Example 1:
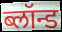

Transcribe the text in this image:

ब्लॉन्ड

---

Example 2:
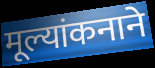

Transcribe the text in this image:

मूल्यांकनाने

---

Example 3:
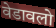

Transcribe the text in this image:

वेडावलो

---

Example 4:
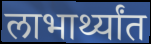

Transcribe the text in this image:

लाभार्थ्यांत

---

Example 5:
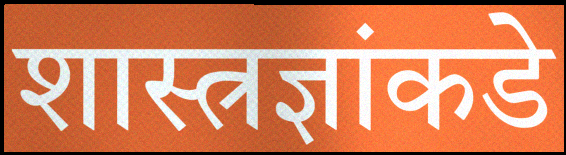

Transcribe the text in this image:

शास्त्रज्ञांकडे